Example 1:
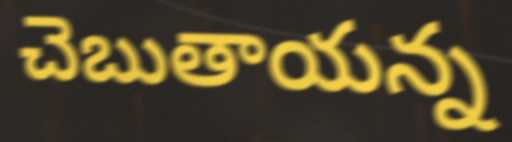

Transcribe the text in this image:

చెబుతాయన్న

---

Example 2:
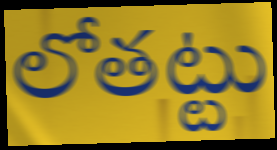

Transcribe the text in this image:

లోతట్టు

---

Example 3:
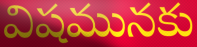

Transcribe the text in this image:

విషమునకు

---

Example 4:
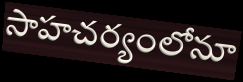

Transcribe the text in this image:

సాహచర్యంలోనూ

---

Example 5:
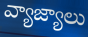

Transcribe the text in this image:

వ్యాజ్యాలు